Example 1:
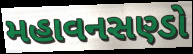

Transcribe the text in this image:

મહાવનસણ્ડો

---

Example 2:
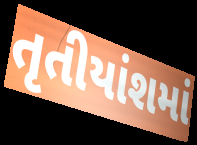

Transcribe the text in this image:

તૃતીયાંશમાં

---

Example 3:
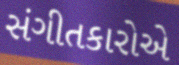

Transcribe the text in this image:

સંગીતકારોએ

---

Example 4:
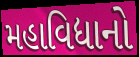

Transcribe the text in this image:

મહાવિદ્યાનો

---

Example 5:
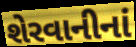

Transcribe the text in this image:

શેરવાનીનાં